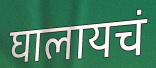
घालायचं